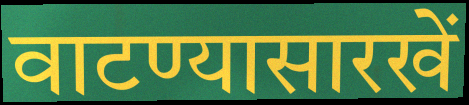
वाटण्यासारखें